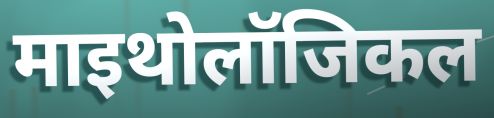
माइथोलॉजिकल